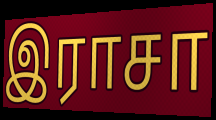
இராசா